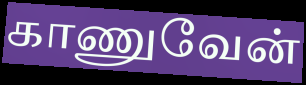
காணுவேன்